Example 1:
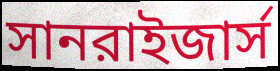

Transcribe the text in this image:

সানরাইজার্স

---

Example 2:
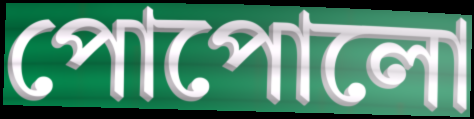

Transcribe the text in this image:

পোপোলো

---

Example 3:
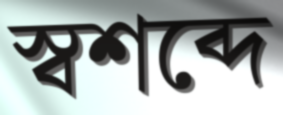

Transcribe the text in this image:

স্বশব্দে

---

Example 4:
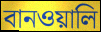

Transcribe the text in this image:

বানওয়ালি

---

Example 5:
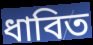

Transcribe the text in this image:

ধাবিত